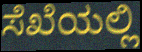
ಸೆಖೆಯಲ್ಲಿ